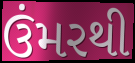
ઉંમરથી